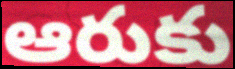
ఆరుకు